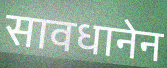
सावधानेन